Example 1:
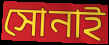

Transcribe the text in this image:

সোনাই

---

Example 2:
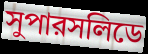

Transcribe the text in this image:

সুপারসলিডে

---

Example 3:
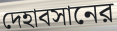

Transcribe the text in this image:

দেহাবসানের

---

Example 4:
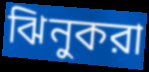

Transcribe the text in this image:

ঝিনুকরা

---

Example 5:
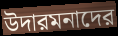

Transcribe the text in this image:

উদারমনাদের